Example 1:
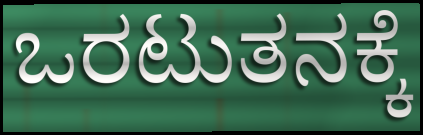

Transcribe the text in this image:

ಒರಟುತನಕ್ಕೆ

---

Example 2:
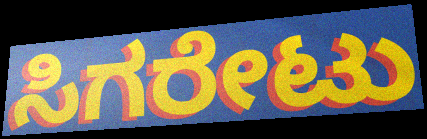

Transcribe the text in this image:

ಸಿಗರೇಟು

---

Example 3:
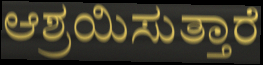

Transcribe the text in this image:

ಆಶ್ರಯಿಸುತ್ತಾರೆ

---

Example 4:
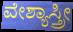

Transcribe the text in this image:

ವೇಶ್ಯಾಸ್ತ್ರೀ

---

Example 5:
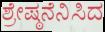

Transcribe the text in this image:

ಶ್ರೇಷ್ಠನೆನಿಸಿದ